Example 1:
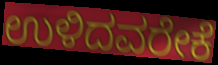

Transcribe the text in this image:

ಉಳಿದವರೇಕೆ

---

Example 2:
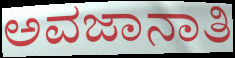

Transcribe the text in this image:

ಅವಜಾನಾತಿ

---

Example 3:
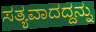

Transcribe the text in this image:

ಸತ್ಯವಾದದ್ದನ್ನು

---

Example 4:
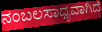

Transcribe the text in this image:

ನಂಬಲಸಾಧ್ಯವಾಗಿದೆ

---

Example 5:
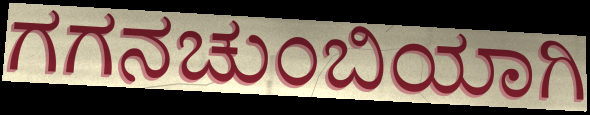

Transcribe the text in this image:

ಗಗನಚುಂಬಿಯಾಗಿ